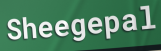
Sheegepal